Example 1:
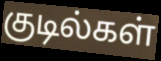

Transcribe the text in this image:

குடில்கள்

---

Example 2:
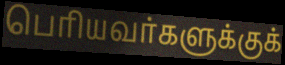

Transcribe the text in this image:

பெரியவர்களுக்குக்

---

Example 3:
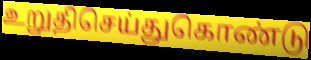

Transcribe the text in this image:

உறுதிசெய்துகொண்டு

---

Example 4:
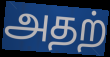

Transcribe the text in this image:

அதற்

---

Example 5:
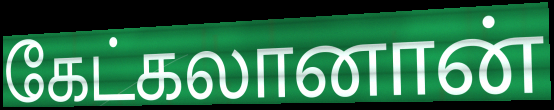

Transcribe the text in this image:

கேட்கலானான்